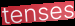
tenses